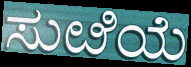
ಸುೞಿಯೆ